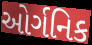
ઓર્ગનિક